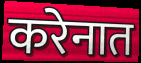
करेनात